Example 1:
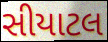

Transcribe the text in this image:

સીયાટલ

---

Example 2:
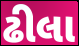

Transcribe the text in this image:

ઢીલા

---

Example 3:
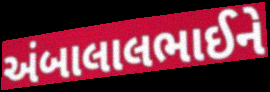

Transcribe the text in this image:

અંબાલાલભાઈને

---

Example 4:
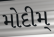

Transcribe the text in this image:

મોદીમ્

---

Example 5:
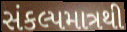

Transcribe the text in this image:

સંકલ્પમાત્રથી